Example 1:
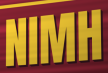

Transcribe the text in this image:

NIMH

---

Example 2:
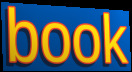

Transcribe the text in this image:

book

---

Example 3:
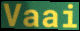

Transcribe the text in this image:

Vaai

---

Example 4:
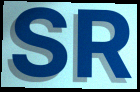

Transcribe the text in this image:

SR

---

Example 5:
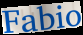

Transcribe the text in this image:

Fabio